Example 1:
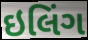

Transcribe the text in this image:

ઇલિંગ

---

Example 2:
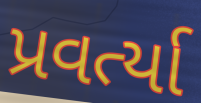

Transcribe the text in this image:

પ્રવર્ત્યા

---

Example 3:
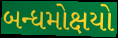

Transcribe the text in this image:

બન્ધમોક્ષયો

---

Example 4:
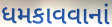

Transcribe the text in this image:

ધમકાવવાનાં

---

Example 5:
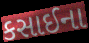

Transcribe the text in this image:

કસાઈના